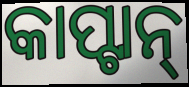
କାପ୍ଟାନ୍